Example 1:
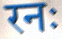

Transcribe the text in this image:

रनः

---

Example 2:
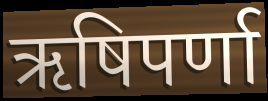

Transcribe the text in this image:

ऋषिपर्णा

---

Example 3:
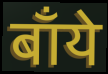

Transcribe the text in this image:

बाँये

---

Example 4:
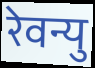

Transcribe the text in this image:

रेवन्यु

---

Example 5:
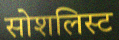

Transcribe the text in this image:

सोशलिस्‍ट